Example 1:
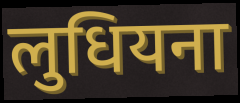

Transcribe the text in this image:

लुधियना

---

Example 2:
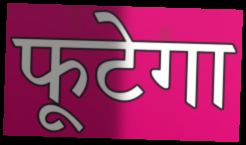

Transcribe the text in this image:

फूटेगा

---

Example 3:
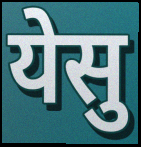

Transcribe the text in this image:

येसु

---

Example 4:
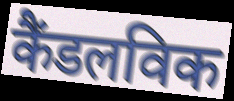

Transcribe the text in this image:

कैंडलविक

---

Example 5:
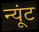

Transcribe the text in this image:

न्यूंट